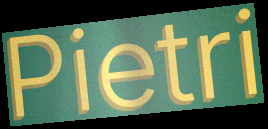
Pietri